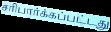
சரிபார்க்கப்பட்டது